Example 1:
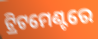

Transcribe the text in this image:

ଟ୍ରିଟମେଣ୍ଟରେ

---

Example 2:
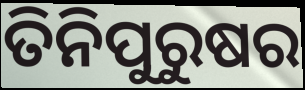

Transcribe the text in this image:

ତିନିପୁରୁଷର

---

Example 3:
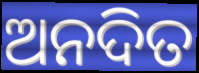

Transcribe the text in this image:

ଅନଦିତ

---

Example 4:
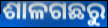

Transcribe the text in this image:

ଶାଳଗଛରୁ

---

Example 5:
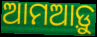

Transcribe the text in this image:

ଆମଆଡ଼ୁ